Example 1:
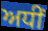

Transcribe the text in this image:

ਅਧੀਂ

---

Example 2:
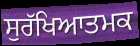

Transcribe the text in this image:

ਸੁਰੱਖਿਆਤਮਕ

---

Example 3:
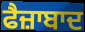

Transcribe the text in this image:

ਫੈਜ਼ਾਬਾਦ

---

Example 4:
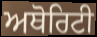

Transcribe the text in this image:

ਅਥੋਰਿਟੀ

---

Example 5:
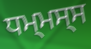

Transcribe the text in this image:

ਧਮ੍ਮਸ੍ਸ